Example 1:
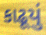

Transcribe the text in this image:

કાઢૂયું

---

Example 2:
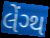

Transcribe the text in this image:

લેંગ્થ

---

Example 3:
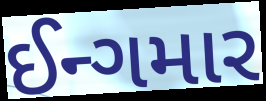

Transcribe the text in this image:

ઈન્ગમાર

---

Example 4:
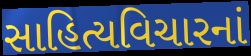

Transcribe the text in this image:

સાહિત્યવિચારનાં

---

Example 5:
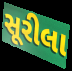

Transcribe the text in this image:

સૂરીલા